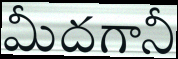
మీదగానీ